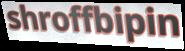
shroffbipin